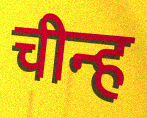
चीन्ह